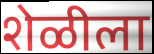
शेळीला